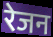
रेजन